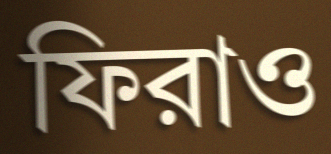
ফিরাও